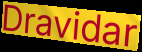
Dravidar